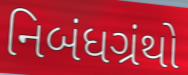
નિબંધગ્રંથો